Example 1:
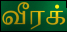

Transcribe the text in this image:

வீரக்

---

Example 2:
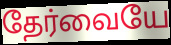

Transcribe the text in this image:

தேர்வையே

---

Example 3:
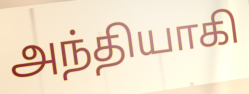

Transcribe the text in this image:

அந்தியாகி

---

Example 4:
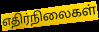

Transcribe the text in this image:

எதிர்நிலைகள்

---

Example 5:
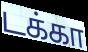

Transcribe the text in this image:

டக்கா